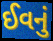
ઈવનું